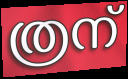
ത്രന്